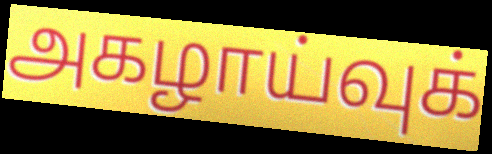
அகழாய்வுக்